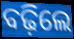
ବଢ଼ିଲେ